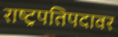
राष्ट्रपतिपदावर